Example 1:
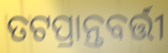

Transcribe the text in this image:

ତଟପ୍ରାନ୍ତବର୍ତ୍ତୀ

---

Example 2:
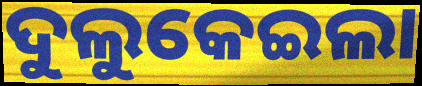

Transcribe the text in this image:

ଦୁଲୁକେଇଲା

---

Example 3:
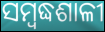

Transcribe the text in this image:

ସମ୍ବଦ୍ଧଶାଳୀ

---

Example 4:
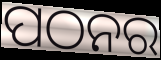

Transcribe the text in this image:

ପଠନର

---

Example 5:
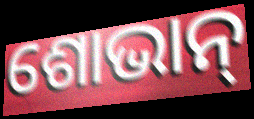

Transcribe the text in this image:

ଶୋଭାନ୍